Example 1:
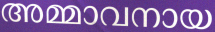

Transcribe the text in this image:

അമ്മാവനായ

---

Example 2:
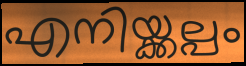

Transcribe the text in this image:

എനിയ്ക്കല്പം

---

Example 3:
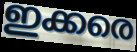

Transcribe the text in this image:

ഇക്കരെ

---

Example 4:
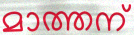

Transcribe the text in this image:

മാത്തന്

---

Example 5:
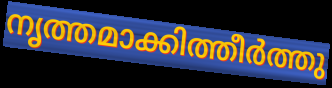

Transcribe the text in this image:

നൃത്തമാക്കിത്തീർത്തു